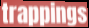
trappings